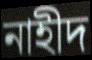
নাহীদ